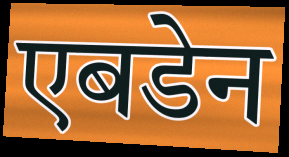
एबडेन